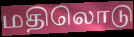
மதிலொடு